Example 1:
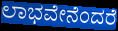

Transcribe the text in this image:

ಲಾಭವೇನೆಂದರೆ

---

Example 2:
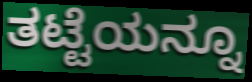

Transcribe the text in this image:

ತಟ್ಟೆಯನ್ನೂ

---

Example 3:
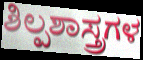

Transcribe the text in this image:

ಶಿಲ್ಪಶಾಸ್ತ್ರಗಳ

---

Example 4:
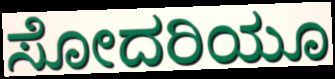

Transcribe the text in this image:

ಸೋದರಿಯೂ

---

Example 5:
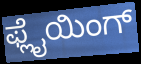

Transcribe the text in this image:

ಫ್ಲೈಯಿಂಗ್